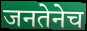
जनतेनेच